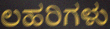
ಲಹರಿಗಳು